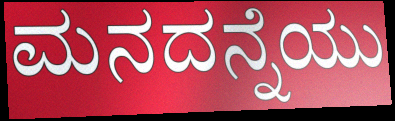
ಮನದನ್ನೆಯು